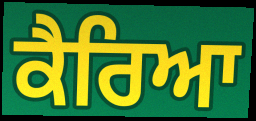
ਕੈਰਿਆ